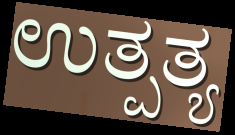
ಉತ್ಪತ್ಯ